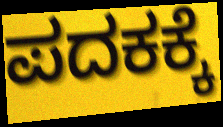
ಪದಕಕ್ಕೆ